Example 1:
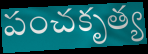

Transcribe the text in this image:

పంచకృత్య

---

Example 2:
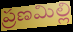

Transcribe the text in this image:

ప్రణమిల్లి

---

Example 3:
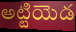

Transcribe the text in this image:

అట్టియెడ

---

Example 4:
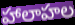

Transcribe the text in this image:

హాలాహల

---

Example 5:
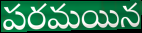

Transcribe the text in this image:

పరమయిన